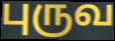
புருவ